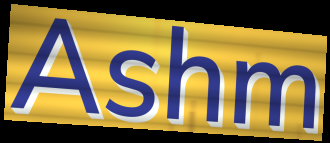
Ashm